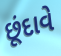
છૂંદાવે